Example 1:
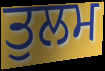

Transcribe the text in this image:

ਤੁਲਮ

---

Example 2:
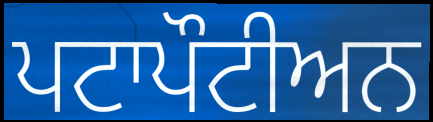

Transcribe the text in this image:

ਪਟਾਪੌਟੀਅਨ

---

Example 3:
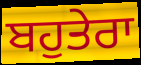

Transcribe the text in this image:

ਬਹੁਤੇਰਾ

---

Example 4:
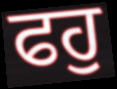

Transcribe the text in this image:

ਫਹੁ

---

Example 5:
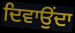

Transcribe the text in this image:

ਦਿਵਾਉਂਦਾ